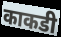
काकडी